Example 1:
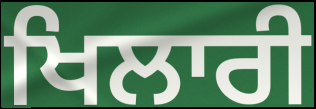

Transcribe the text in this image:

ਖਿਲਾਰੀ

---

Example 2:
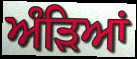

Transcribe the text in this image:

ਅੰੜਿਆਂ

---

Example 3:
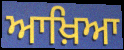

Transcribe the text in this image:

ਆਖ਼ਿਆ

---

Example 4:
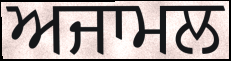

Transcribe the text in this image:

ਅਜਾਮਲ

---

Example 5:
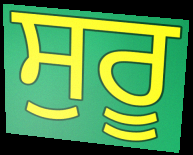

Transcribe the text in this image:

ਸੁਰੂ